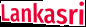
Lankasri